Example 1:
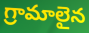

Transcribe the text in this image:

గ్రామాలైన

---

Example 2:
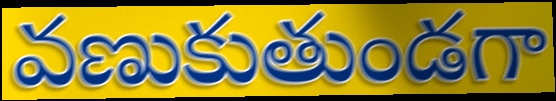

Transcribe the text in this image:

వణుకుతుండగా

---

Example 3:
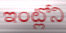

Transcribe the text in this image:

ఇంట్లోని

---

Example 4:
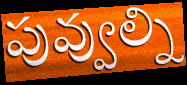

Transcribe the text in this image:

పువ్వుల్ని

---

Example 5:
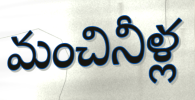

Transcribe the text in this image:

మంచినీళ్ల